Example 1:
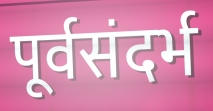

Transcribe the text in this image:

पूर्वसंदर्भ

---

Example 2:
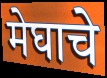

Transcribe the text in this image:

मेघाचे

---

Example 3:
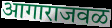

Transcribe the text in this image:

आगाराजवळ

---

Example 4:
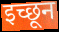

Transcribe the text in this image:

इच्छून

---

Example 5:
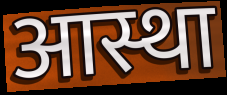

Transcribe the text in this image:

आस्था